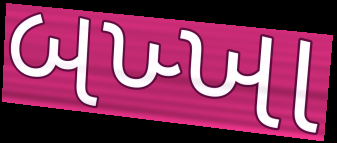
બખ્ખા